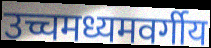
उच्चमध्यमवर्गीय